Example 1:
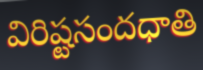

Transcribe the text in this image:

విరిష్టసందధాతి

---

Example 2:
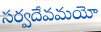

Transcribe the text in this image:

సర్వదేవమయో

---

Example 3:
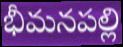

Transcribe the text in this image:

భీమనపల్లి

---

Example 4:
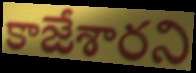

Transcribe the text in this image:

కాజేశారని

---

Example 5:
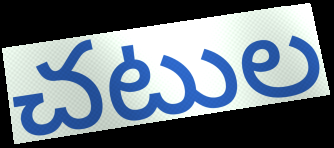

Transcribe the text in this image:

చటుల